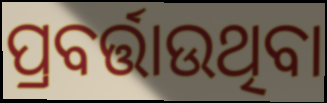
ପ୍ରବର୍ତ୍ତାଉଥିବା